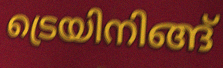
ട്രെയിനിങ്ങ്